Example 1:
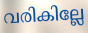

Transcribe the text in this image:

വരികില്ലേ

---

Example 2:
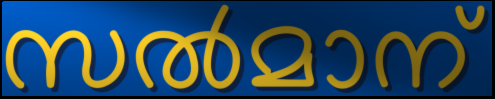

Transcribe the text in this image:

സൽമാന്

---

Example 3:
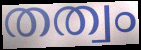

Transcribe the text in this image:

തത്വം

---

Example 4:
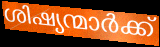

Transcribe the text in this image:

ശിഷ്യന്മാർക്ക്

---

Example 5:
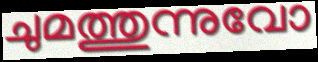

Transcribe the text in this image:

ചുമത്തുന്നുവോ